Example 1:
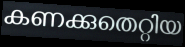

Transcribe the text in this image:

കണക്കുതെറ്റിയ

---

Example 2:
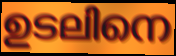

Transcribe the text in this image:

ഉടലിനെ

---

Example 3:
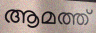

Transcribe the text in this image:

ആമത്ത്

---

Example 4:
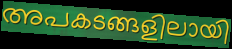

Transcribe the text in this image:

അപകടങ്ങളിലായി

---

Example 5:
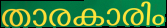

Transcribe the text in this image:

താരകാരിം